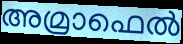
അമ്രാഫെൽ